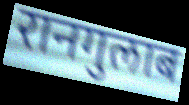
रानगुलाब